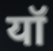
यॉ